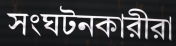
সংঘটনকারীরা